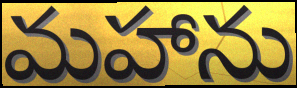
మహాను